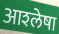
आश्‍लेषा